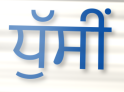
ਧੁੱਸੀਂ